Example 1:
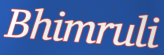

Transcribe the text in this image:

Bhimruli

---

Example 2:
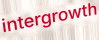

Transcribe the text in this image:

intergrowth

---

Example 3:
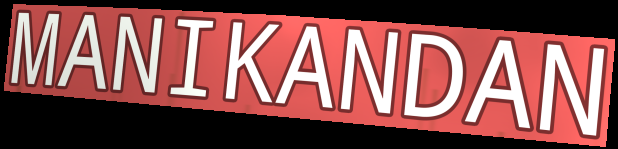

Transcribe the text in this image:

MANIKANDAN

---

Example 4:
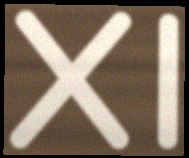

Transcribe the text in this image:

Xl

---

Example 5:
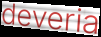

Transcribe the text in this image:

deveria